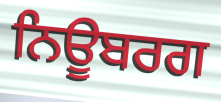
ਨਿਊਬਰਗ